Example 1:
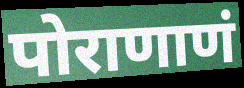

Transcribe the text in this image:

पोराणाणं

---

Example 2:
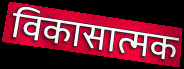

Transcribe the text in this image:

विकासात्मक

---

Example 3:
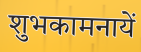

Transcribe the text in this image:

शुभकामनायें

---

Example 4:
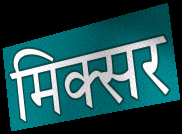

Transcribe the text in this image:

मिक्‍सर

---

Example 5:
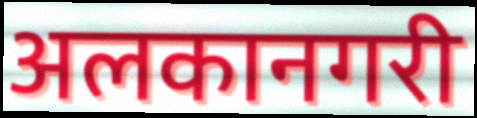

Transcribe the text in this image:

अलकानगरी